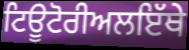
ਟਿਊਟੋਰੀਅਲਇੱਥੇ